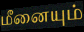
மீனையும்